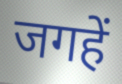
जगहें